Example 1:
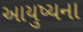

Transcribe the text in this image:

આયુષ્યના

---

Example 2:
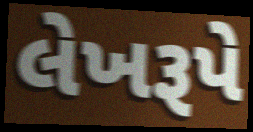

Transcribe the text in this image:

લેખરૂપે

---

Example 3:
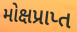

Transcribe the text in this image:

મોક્ષપ્રાપ્ત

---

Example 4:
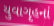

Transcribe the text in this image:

યુવાગૃહનાં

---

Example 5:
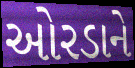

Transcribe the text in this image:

ઓરડાને